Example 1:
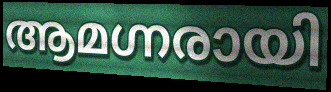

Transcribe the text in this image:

ആമഗ്നരായി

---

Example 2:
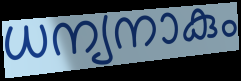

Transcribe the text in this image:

ധന്യനാകും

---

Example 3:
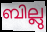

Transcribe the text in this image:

ബില്ലു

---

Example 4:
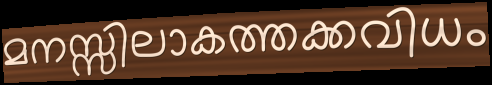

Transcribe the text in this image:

മനസ്സിലാകത്തക്കവിധം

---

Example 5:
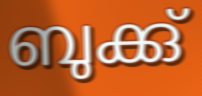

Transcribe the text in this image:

ബുക്കു്